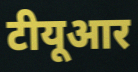
टीयूआर